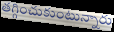
తగ్గించుకుంటున్నారు